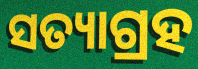
ସତ୍ୟାଗ୍ରହ